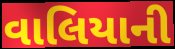
વાલિયાની